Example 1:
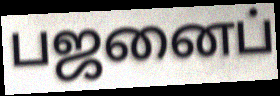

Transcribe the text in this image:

பஜனைப்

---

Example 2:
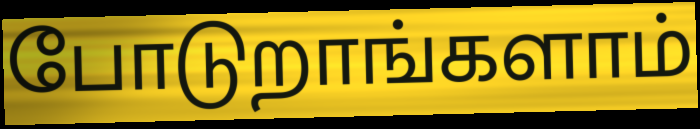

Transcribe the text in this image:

போடுறாங்களாம்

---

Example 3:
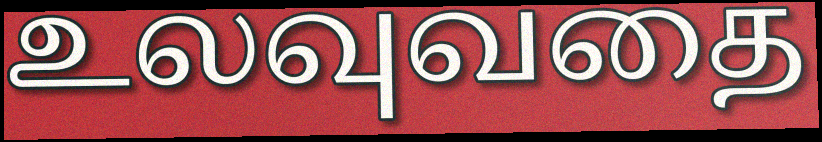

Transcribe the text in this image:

உலவுவதை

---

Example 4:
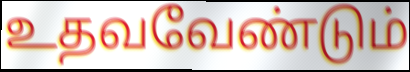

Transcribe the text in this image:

உதவவேண்டும்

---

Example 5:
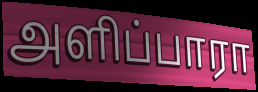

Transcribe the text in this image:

அளிப்பாரா